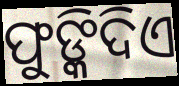
ଫୁଙ୍କିଦିଏ